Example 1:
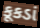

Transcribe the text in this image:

કૂકડાં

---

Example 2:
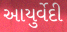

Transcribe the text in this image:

આયુર્વેદી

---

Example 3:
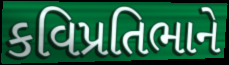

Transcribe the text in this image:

કવિપ્રતિભાને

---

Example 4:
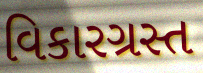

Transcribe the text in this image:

વિકારગ્રસ્ત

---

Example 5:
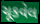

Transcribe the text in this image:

ચૂકવેલ